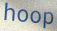
hoop